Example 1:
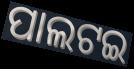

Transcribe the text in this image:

ପାଲଟଇ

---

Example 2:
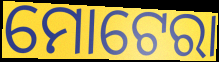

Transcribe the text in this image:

ମୋଟେରା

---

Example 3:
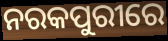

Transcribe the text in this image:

ନରକପୁରୀରେ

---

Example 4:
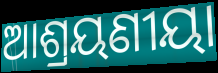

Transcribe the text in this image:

ଆଶ୍ରୟଣୀୟା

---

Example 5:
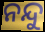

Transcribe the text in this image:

ନନ୍ଦୁ